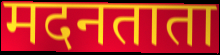
मदनताता